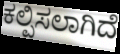
ಕಲ್ಪಿಸಲಾಗಿದೆ